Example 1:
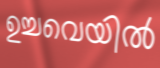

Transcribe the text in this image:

ഉച്ചവെയിൽ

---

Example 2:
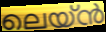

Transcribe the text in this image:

ലെയ്ൻ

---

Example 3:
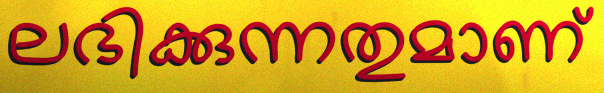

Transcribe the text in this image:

ലഭിക്കുന്നതുമാണ്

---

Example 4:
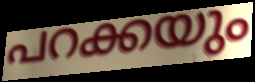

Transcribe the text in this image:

പറക്കയും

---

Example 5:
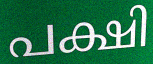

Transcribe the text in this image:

പക്ഷി